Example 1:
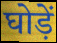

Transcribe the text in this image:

घोड़ें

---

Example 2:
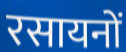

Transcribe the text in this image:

रसायनों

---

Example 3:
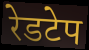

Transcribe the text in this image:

रेडटेप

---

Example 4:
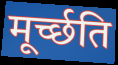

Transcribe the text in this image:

मूर्च्छति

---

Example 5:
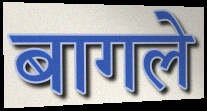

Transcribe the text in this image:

बागले